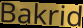
Bakrid